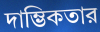
দাম্ভিকতার